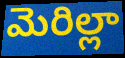
మెరిల్లా